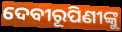
ଦେବୀରୂପିଣୀଙ୍କୁ